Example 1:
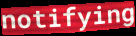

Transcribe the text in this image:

notifying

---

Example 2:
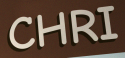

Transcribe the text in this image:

CHRI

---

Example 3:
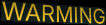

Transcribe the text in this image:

WARMING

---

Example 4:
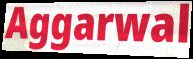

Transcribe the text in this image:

Aggarwal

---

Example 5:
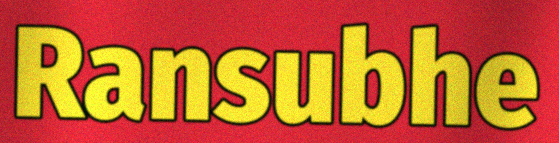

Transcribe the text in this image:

Ransubhe